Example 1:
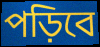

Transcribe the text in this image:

পড়িবে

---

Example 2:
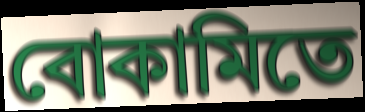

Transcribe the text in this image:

বোকামিতে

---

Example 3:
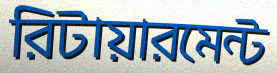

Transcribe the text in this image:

রিটায়ারমেন্ট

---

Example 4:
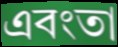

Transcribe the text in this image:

এবংতা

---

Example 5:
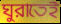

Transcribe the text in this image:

ঘুরাতেই